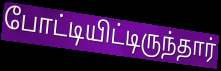
போட்டியிட்டிருந்தார்